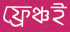
ফ্রেঞ্চই